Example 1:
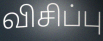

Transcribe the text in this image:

விசிப்பு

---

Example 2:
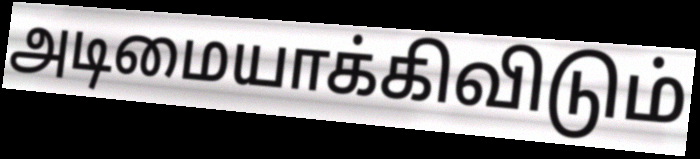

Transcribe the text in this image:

அடிமையாக்கிவிடும்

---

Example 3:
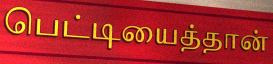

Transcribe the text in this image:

பெட்டியைத்தான்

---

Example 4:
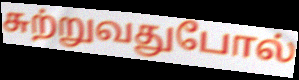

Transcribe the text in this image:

சுற்றுவதுபோல்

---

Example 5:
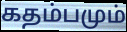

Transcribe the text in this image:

கதம்பமும்